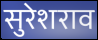
सुरेशराव